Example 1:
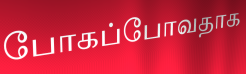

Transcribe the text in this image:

போகப்போவதாக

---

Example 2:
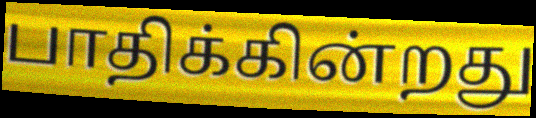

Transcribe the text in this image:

பாதிக்கின்றது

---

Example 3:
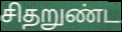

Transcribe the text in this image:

சிதறுண்ட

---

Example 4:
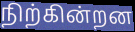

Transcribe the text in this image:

நிற்கின்றன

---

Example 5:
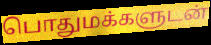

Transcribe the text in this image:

பொதுமக்களுடன்